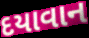
દયાવાન